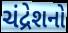
ચંદ્રેશનો